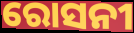
ରୋସନୀ